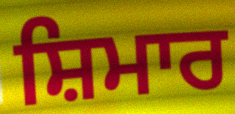
ਸ਼ਿਮਾਰ